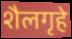
शैलगृहे